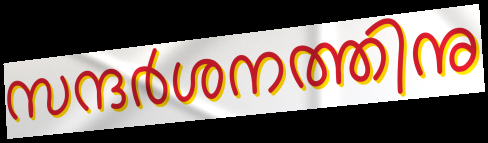
സന്ദർശനത്തിനു